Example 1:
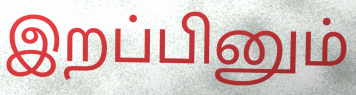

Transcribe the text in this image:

இறப்பினும்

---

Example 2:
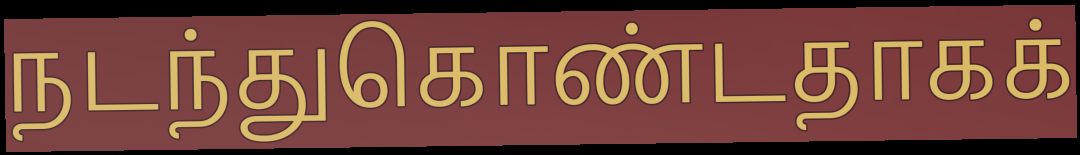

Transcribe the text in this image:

நடந்துகொண்டதாகக்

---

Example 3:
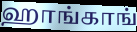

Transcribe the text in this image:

ஹாங்காங்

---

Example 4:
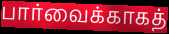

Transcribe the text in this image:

பார்வைக்காகத்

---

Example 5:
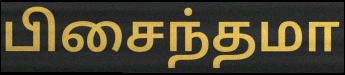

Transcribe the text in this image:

பிசைந்தமா